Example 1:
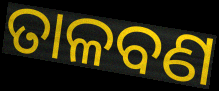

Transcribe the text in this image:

ତାଳବଣ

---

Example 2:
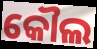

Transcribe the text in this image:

କୌଲ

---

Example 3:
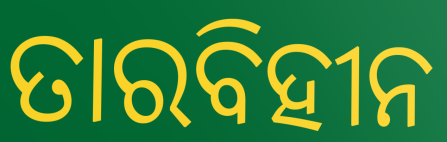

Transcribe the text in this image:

ତାରବିହୀନ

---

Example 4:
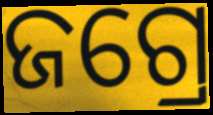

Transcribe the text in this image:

ଜଗ୍ରେ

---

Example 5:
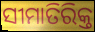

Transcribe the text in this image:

ସୀମାତିରିକ୍ତ